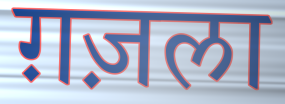
ग़ज़ला